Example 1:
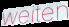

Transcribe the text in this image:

weiten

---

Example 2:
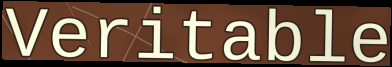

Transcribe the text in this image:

Veritable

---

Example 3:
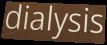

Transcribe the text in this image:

dialysis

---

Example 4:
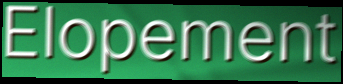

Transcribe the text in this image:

Elopement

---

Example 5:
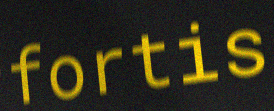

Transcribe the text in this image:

fortis